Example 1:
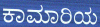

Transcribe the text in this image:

ಕಾಮಾರಿಯ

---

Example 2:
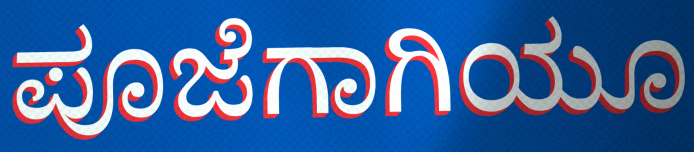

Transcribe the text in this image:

ಪೂಜೆಗಾಗಿಯೂ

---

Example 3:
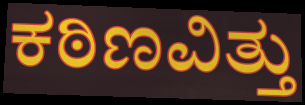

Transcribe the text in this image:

ಕಠಿಣವಿತ್ತು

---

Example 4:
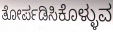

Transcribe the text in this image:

ತೋರ್ಪಡಿಸಿಕೊಳ್ಳುವ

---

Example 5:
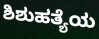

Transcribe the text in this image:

ಶಿಶುಹತ್ಯೆಯ